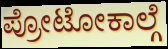
ಪ್ರೋಟೋಕಾಲ್ಗೆ